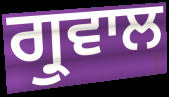
ਗ੍ਰੁਵਾਲ